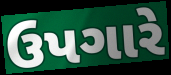
ઉપગારે